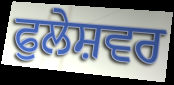
ਫੁਲੇਸ਼ਵਰ